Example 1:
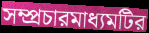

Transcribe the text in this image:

সম্প্রচারমাধ্যমটির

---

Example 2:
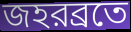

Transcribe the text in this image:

জহরব্রতে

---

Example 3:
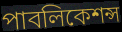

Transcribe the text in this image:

পাবলিকেশন্স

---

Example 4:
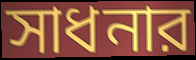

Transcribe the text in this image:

সাধনার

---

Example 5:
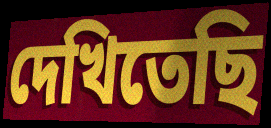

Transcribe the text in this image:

দেখিতেছি